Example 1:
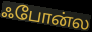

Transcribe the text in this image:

ஃபோன்ல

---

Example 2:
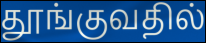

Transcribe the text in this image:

தூங்குவதில்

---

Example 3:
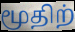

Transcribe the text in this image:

மூதிற்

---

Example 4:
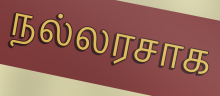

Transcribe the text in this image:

நல்லரசாக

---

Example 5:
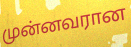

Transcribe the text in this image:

முன்னவரான